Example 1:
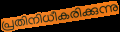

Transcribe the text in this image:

പ്രതിനിധീകരിക്കുന്നു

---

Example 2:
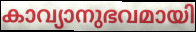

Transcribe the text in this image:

കാവ്യാനുഭവമായി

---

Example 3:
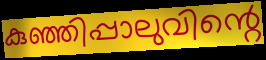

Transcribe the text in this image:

കുഞ്ഞിപ്പാലുവിന്റെ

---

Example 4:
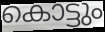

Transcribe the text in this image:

കൊട്ടും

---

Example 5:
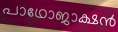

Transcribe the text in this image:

പാഥോജാക്ഷൻ